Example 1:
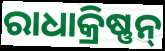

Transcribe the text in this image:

ରାଧାକ୍ରିଷ୍ଣନ୍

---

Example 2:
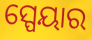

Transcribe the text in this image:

ସ୍ପେୟାର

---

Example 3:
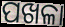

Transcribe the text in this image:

ପଖଳା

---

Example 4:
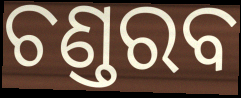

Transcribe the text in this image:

ଚଣ୍ଡରବ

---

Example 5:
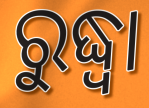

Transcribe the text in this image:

ରୁଦ୍ଧ୍ୱା